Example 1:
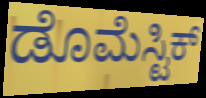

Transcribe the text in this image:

ಡೊಮೆಸ್ಟಿಕ್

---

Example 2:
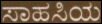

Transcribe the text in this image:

ಸಾಹಸಿಯ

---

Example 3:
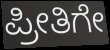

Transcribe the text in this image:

ಪ್ರೀತಿಗೇ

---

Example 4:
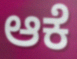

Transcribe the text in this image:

ಆಕೆ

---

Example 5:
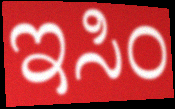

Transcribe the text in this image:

ಇಸಿಂ